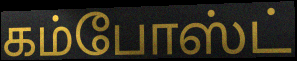
கம்போஸ்ட்